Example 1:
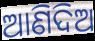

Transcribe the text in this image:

ଆଣିଦିଅ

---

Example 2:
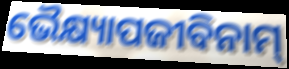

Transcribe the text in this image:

ଭୈକ୍ଷ୍ୟାପଜୀବିନାମ୍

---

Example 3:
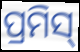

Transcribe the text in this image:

ପ୍ରମିସ୍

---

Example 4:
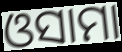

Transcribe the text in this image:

ଓସାମା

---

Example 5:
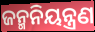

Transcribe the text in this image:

ଜନ୍ମନିୟନ୍ତ୍ରଣ